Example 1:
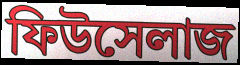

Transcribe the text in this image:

ফিউসেলাজ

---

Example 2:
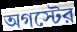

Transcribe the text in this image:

অগস্টের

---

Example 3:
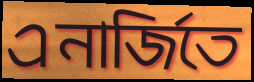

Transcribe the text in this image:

এনার্জিতে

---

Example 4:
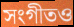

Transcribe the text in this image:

সংগীতও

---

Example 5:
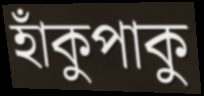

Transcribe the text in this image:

হাঁকুপাকু